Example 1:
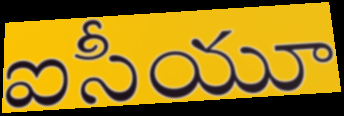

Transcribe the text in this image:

ఐసీయూ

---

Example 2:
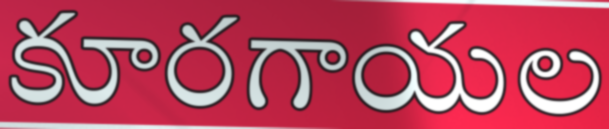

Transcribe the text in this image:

కూరగాయల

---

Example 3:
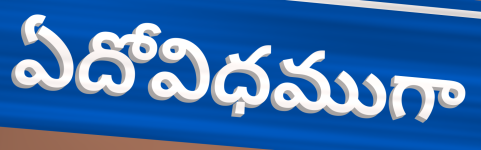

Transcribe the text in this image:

ఏదోవిధముగా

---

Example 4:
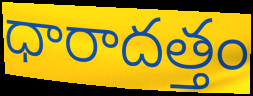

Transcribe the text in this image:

ధారాదత్తం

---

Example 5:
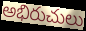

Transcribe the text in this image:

అభిరుచులు